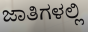
ಜಾತಿಗಳಲ್ಲಿ